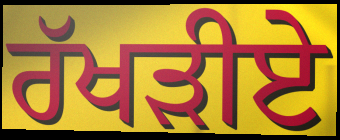
ਰੱਖੜੀਏ